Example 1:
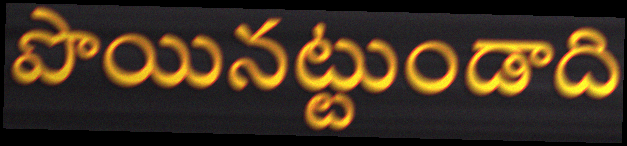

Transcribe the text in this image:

పొయినట్టుండాది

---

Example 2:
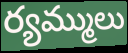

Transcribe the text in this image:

ర్యమ్ములు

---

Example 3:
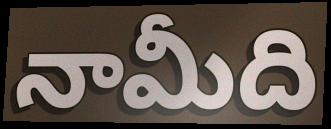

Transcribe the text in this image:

నామీది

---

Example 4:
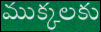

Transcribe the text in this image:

ముక్కలకు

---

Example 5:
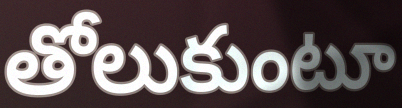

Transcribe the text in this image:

తోలుకుంటూ